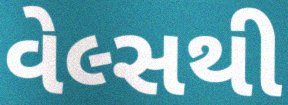
વેલ્સથી